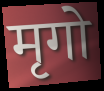
मृगो